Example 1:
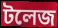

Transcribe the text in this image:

টলেজ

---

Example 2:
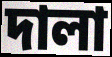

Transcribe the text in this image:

দালা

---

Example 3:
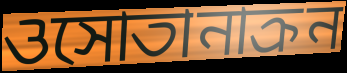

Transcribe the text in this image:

ওসোতানাক্রন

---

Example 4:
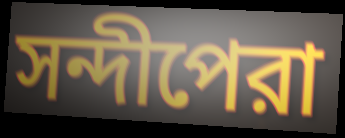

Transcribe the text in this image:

সন্দীপেরা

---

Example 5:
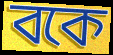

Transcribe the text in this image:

বকে